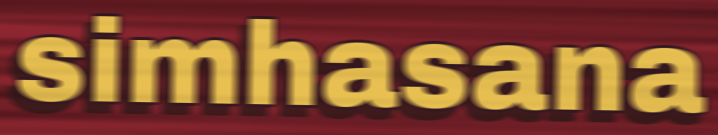
simhasana